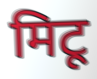
मिटू